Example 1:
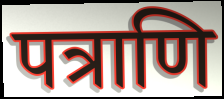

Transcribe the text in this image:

पत्राणि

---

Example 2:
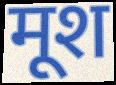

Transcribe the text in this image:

मूश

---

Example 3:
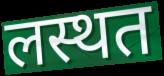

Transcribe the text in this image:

लस्थत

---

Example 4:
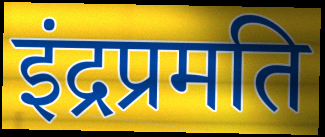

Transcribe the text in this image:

इंद्रप्रमति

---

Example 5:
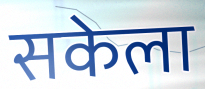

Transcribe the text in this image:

सकेला